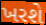
ખરશે